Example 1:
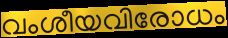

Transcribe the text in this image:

വംശീയവിരോധം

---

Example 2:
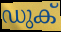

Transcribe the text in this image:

ഡുക്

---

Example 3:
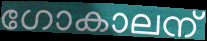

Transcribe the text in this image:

ഗോകാലന്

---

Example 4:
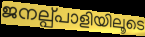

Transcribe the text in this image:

ജനല്പ്പാളിയിലൂടെ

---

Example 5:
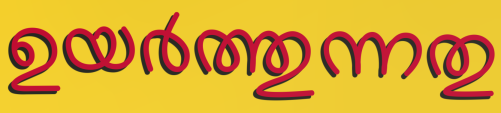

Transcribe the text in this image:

ഉയർത്തുന്നതു